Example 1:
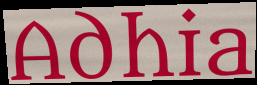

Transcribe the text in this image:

Adhia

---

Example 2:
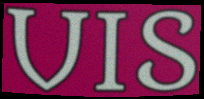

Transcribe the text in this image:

UIS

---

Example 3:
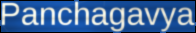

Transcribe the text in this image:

Panchagavya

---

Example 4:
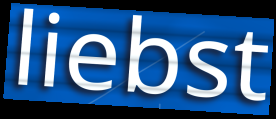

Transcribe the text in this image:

liebst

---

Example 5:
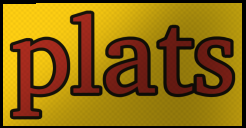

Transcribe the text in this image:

plats